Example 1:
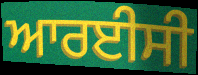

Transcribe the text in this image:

ਆਰਈਸੀ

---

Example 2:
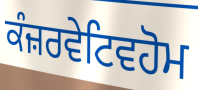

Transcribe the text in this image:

ਕੰਜ਼ਰਵੇਟਿਵਹੋਮ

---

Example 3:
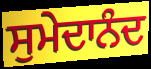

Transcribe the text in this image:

ਸੁਮੇਦਾਨੰਦ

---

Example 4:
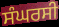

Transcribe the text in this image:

ਸੰਘਰਸੀ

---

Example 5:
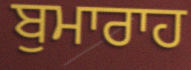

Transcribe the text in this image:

ਬੁਮਾਰਾਹ